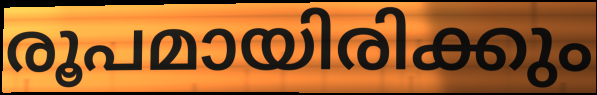
രൂപമായിരിക്കും